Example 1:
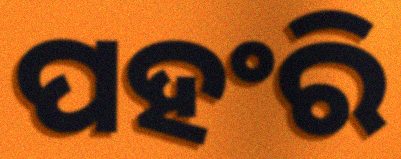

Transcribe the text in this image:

ପହଂରି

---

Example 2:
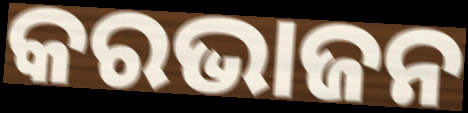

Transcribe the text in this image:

କରଭାଜନ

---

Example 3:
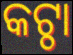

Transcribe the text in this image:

କଟ୍ଠା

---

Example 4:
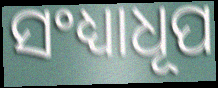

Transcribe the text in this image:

ସଂଧ୍ୟାଧୂପ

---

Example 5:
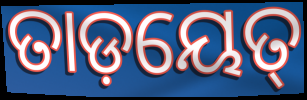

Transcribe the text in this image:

ତାଡ଼ୟେତ୍